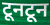
टूनटून